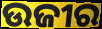
ଉଜୀର